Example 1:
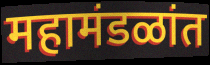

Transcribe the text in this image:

महामंडळांत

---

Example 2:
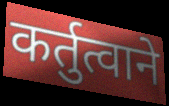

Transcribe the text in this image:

कर्तुत्वाने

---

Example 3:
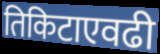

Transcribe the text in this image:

तिकिटाएवढी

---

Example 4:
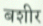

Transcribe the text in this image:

बशीर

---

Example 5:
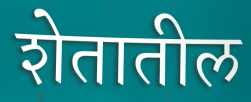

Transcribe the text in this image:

शेतातील